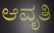
ಆವೃತಿ